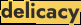
delicacy